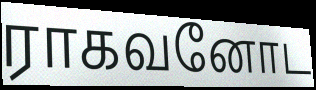
ராகவனோட